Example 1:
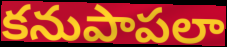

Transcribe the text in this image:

కనుపాపలా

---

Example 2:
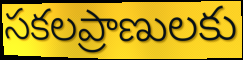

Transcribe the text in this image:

సకలప్రాణులకు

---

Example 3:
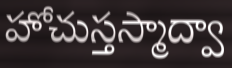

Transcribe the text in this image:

హోచుస్తస్మాద్వా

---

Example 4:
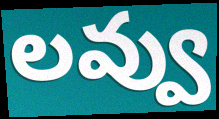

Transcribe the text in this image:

లవ్వు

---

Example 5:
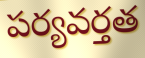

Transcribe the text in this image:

పర్యవర్తత